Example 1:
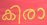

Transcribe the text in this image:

കിരാ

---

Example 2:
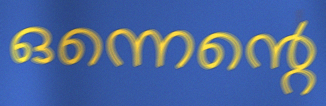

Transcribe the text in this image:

ഒന്നെന്റെ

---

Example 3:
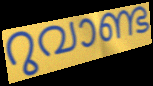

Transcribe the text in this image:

റുവാണ്ട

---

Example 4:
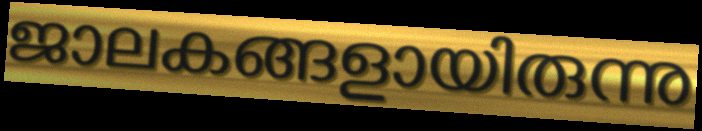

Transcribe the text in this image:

ജാലകങ്ങളായിരുന്നു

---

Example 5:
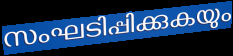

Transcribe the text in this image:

സംഘടിപ്പിക്കുകയും